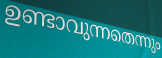
ഉണ്ടാവുന്നതെന്നും